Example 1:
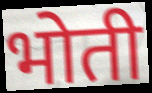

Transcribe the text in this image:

भोती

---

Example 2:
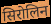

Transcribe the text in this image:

सिरोलिन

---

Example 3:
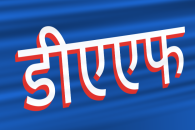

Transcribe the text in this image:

डीएएफ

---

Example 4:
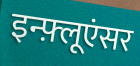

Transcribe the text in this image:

इन्फ़्लूएंसर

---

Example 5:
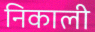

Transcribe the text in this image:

निकाली